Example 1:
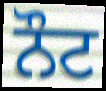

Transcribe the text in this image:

ਨੌਟ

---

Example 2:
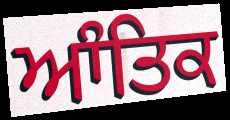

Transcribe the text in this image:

ਆੰਤਿਕ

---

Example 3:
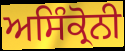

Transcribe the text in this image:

ਅਸਿੰਕ੍ਰੋਨੀ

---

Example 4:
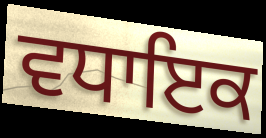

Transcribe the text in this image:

ਵਧਾਇਕ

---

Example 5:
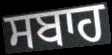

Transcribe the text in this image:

ਸਬਾਹ